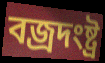
বজ্রদংষ্ট্র